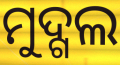
ମୁଦ୍ଗଲ